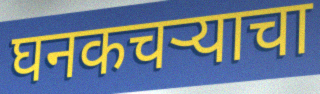
घनकचऱ्याचा